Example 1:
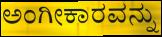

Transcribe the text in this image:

ಅಂಗೀಕಾರವನ್ನು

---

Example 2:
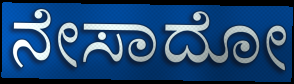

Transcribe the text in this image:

ನೇಸಾದೋ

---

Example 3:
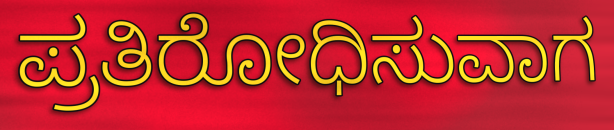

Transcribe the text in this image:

ಪ್ರತಿರೋಧಿಸುವಾಗ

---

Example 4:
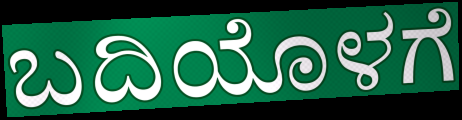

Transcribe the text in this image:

ಬದಿಯೊಳಗೆ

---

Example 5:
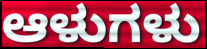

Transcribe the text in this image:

ಆಳುಗಳು